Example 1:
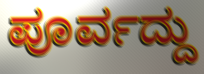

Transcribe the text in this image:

ಪೂರ್ವದ್ದು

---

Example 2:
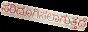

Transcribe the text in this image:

ಸರಿದೂಗಿಸಲಾಗುತ್ತದೆ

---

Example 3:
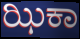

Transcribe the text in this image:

ಝಿಕಾ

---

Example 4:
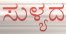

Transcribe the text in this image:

ಸುಳ್ಯದ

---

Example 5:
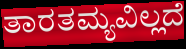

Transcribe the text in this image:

ತಾರತಮ್ಯವಿಲ್ಲದೆ